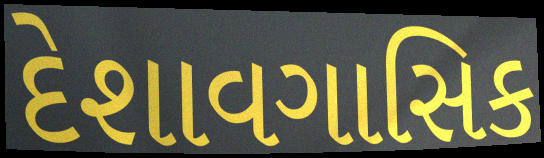
દેશાવગાસિક